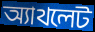
অ্যাথলেট